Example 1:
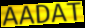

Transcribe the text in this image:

AADAT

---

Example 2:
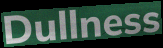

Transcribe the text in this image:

Dullness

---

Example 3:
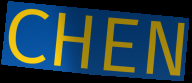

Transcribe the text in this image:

CHEN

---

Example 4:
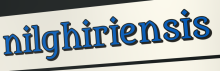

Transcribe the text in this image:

nilghiriensis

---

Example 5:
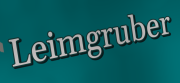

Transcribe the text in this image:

Leimgruber